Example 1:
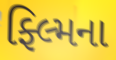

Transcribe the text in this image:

ફ્લ્મિના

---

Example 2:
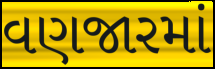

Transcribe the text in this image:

વણજારમાં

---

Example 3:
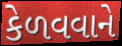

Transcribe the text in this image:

કેળવવાને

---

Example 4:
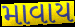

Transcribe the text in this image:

માવાય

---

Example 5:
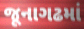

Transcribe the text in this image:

જૂનાગઢમાં